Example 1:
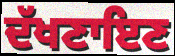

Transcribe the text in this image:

ਦੱਖਣਾਇਣ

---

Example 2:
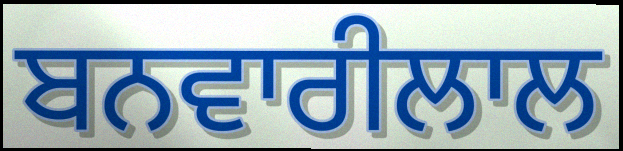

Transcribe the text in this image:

ਬਨਵਾਰੀਲਾਲ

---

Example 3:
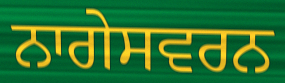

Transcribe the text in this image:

ਨਾਗੇਸਵਰਨ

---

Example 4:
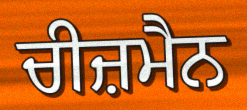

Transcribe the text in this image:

ਚੀਜ਼ਮੈਨ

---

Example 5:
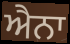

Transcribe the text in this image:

ਐਨਾ